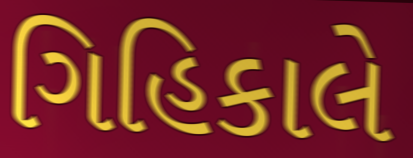
ગિહિકાલે